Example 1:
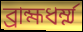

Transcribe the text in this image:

ব্রাহ্মধর্ম্ম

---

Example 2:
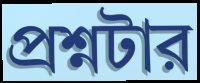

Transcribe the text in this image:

প্রশ্নটার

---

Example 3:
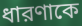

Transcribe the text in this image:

ধারণাকে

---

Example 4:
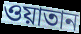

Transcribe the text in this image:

ওয়াতান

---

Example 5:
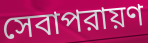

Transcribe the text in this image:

সেবাপরায়ণ